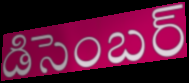
డిసెంబర్